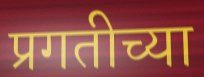
प्रगतीच्या